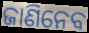
ଜାଣିନେବ